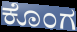
ಕೊಂಗ